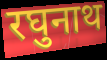
रघुनाथ